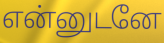
என்னுடனே